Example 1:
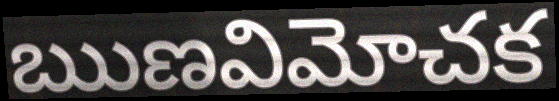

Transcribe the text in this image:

ఋణవిమోచక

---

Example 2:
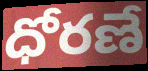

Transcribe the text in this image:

ధోరణే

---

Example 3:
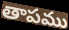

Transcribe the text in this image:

తాపము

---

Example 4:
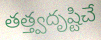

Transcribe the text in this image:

తత్త్వదృష్టిచే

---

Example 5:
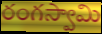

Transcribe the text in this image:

రంగస్వామి